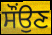
ਸੌਂਉਣ